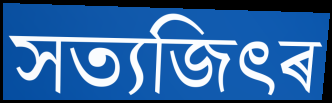
সত্যজিৎৰ